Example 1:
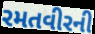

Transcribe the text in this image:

રમતવીરની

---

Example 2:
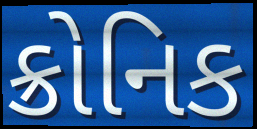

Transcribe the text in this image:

ક્રોનિક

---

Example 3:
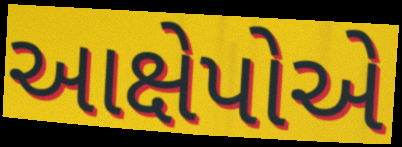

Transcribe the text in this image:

આક્ષેપોએ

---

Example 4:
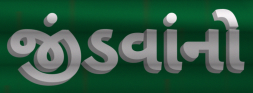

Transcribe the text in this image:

જીંડવાંનો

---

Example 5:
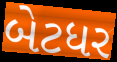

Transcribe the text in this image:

બેટધર